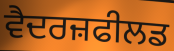
ਵੈਦਰਜ਼ਫੀਲਡ